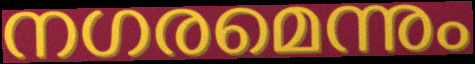
നഗരമെന്നും